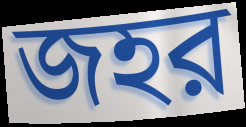
জহর